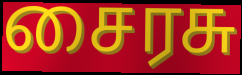
சைரசு